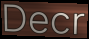
Decr